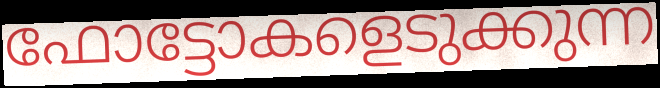
ഫോട്ടോകളെടുക്കുന്ന